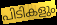
പിടികളും